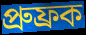
প্রুফ্রক